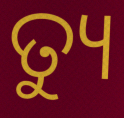
ତ୍ୟୁ